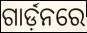
ଗାର୍ଡ଼ନରେ